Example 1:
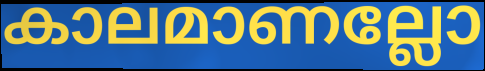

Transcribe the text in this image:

കാലമാണല്ലോ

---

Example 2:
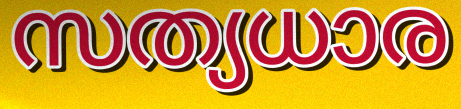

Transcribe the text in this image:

സത്യധാര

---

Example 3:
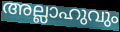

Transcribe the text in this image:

അല്ലാഹുവും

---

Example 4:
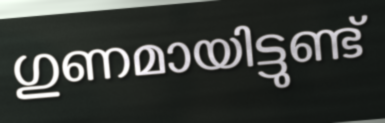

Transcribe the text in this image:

ഗുണമായിട്ടുണ്ട്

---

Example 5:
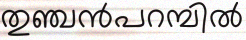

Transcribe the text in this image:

തുഞ്ചൻപറമ്പിൽ